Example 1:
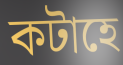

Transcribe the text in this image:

কটাহে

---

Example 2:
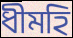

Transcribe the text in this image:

ধীমহি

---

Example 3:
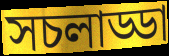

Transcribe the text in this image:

সচলাড্ডা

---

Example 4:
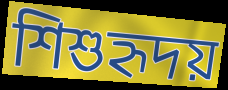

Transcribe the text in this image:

শিশুহৃদয়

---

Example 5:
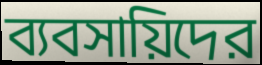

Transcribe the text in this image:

ব্যবসায়িদের